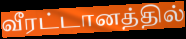
வீரட்டானத்தில்